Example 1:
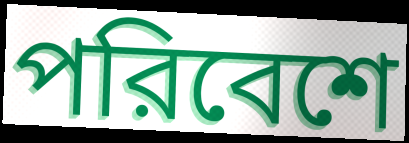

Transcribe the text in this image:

পরিবেশে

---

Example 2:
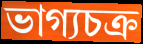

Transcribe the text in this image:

ভাগ্যচক্র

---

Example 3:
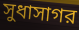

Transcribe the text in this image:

সুধাসাগর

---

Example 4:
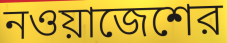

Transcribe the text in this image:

নওয়াজেশের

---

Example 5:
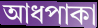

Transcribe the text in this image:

আধপাকা